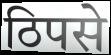
ठिपसे